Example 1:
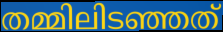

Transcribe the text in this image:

തമ്മിലിടഞ്ഞത്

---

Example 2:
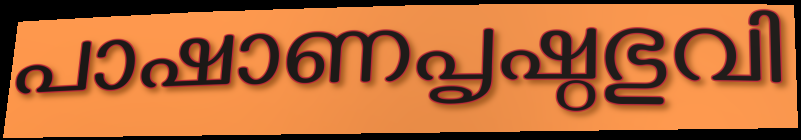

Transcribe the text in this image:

പാഷാണപൃഷ്ഠഭുവി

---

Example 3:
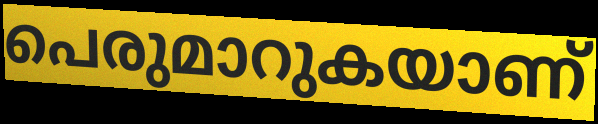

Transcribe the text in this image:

പെരുമാറുകയാണ്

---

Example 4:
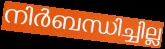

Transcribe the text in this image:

നിർബന്ധിച്ചില്ല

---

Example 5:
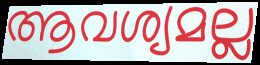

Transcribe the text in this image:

ആവശ്യമല്ല